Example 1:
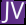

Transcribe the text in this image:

JV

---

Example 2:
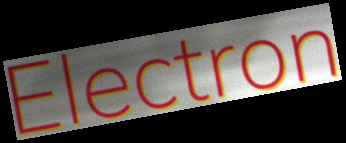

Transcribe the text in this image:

Electron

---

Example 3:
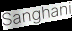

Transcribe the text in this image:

Sanghani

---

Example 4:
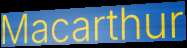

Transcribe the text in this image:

Macarthur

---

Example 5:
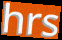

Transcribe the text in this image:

hrs